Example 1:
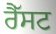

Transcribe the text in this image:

ਰੈੱਸਟ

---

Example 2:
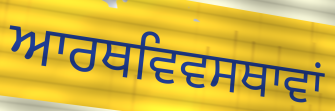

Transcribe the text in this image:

ਆਰਥਵਿਵਸਥਾਵਾਂ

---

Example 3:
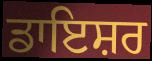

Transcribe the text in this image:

ਡਾਇਸ਼ਰ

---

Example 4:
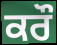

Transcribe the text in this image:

ਕਰੌ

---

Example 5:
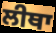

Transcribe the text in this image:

ਲੀਥਾ